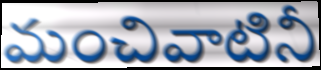
మంచివాటినీ